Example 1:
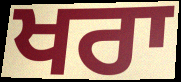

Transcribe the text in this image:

ਖਰਾ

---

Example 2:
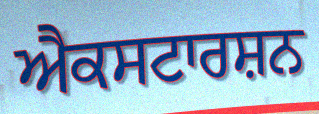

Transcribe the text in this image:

ਐਕਸਟਾਰਸ਼ਨ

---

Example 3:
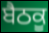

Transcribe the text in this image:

ਬੈਠਕੂ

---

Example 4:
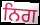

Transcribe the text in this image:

ਨਿਗ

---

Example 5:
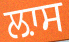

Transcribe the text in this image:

ਲ਼ਾਸ